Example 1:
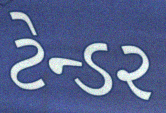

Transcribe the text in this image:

ટેન્ડર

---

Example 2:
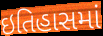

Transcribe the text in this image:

ઇતિહાસમાં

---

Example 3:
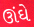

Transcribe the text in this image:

ઊંઘે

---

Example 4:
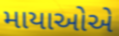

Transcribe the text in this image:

માયાઓએ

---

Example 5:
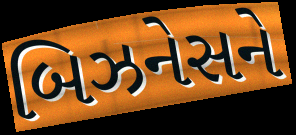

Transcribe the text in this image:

બિઝનેસને